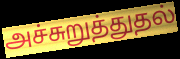
அச்சுறுத்துதல்